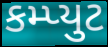
કમ્પ્યુટ